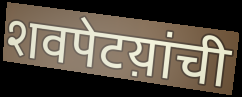
शवपेटय़ांची